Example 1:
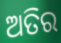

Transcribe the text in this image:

ଅତିର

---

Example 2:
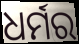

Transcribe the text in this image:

ଧର୍ମର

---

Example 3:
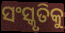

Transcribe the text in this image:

ସଂସ୍କୃତିକୁ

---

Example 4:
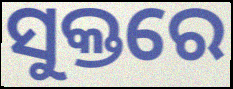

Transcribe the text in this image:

ସୁକ୍ତରେ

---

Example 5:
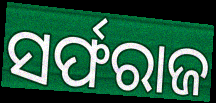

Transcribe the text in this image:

ସର୍ଫରାଜ